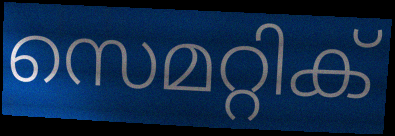
സെമറ്റിക്